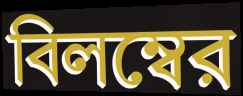
বিলম্বের